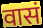
वासं